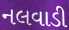
નલવાડી